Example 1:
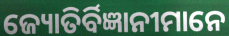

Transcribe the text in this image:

ଜ୍ୟୋତିର୍ବିଜ୍ଞାନୀମାନେ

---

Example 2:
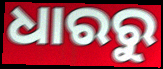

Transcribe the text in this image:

ଧାରରୁ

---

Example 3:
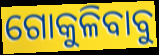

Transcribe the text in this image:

ଗୋକୁଳିବାବୁ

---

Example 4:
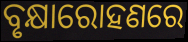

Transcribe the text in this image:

ବୃକ୍ଷାରୋହଣରେ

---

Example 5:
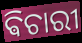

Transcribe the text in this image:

ଵିଚାରୀ